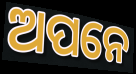
ଅପନେ